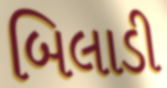
બિલાડી